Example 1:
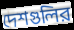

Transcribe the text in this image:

দেশগুলির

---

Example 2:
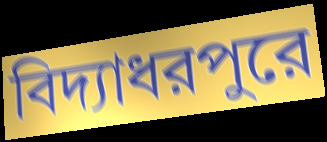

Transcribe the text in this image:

বিদ্যাধরপুরে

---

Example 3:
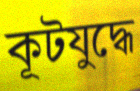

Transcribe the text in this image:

কূটযুদ্ধে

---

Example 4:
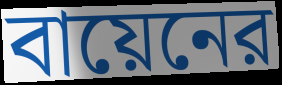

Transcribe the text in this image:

বায়েনের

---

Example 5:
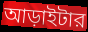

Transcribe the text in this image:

আড়াইটার